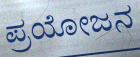
ಪ್ರಯೋಜನ